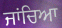
ਜਾਂਚਿਆ